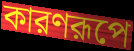
কারণরূপে